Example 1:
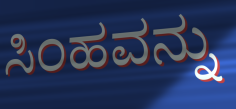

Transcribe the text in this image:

ಸಿಂಹವನ್ನು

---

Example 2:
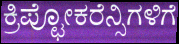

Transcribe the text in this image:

ಕ್ರಿಪ್ಟೋಕರೆನ್ಸಿಗಳಿಗೆ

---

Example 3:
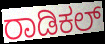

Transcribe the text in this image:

ರಾಡಿಕಲ್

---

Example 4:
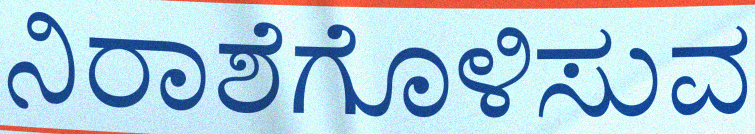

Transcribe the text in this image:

ನಿರಾಶೆಗೊಳಿಸುವ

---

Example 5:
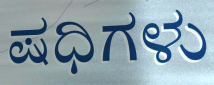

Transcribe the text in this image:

ಷಧಿಗಳು